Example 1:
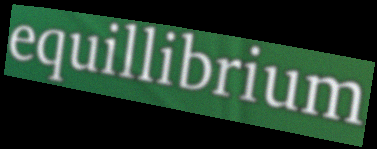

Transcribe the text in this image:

equillibrium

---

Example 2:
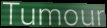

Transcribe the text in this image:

Tumour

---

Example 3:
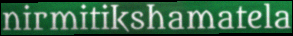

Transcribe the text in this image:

nirmitikshamatela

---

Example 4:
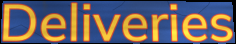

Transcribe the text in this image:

Deliveries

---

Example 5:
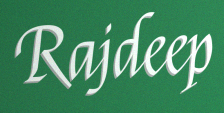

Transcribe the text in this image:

Rajdeep